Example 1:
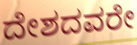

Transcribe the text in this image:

ದೇಶದವರೇ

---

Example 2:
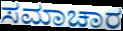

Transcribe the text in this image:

ಸಮಾಚಾರ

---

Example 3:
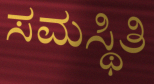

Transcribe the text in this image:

ಸಮಸ್ಥಿತಿ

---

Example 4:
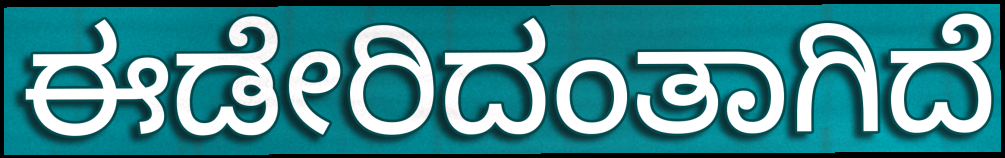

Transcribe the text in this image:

ಈಡೇರಿದಂತಾಗಿದೆ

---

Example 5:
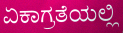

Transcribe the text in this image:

ಏಕಾಗ್ರತೆಯಲ್ಲಿ